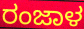
ರಂಜಾಳ